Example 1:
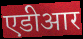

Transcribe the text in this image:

एडीआर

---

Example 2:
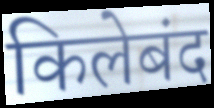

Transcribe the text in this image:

किलेबंद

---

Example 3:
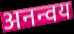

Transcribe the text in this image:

अनन्वय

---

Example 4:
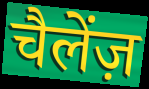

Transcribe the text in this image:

चैलेंज़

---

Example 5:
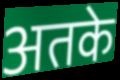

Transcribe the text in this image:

अतके